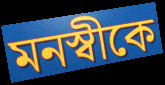
মনস্বীকে